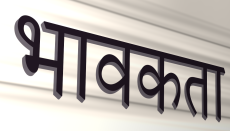
भावकता